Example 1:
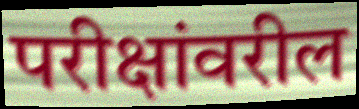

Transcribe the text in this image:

परीक्षांवरील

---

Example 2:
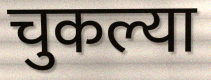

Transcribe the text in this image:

चुकल्या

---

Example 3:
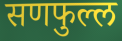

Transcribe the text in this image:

सणफुल्ल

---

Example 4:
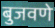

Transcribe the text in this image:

बुजवणे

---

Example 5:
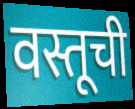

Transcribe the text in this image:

वस्तूची